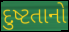
દુષ્ટતાનો